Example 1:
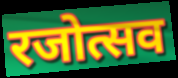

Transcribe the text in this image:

रजोत्सव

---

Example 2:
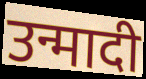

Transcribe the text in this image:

उन्मादी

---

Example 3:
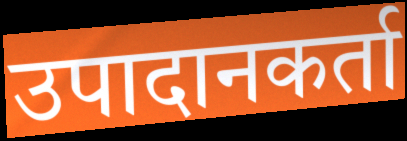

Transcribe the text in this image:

उपादानकर्ता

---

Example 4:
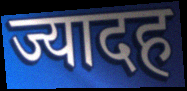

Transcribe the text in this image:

ज्यादह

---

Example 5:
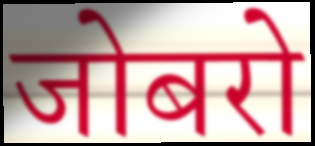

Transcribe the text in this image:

जोबरो